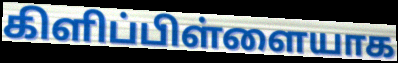
கிளிப்பிள்ளையாக